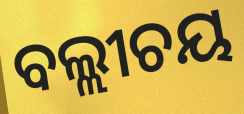
ବଲ୍ଲୀଚୟ